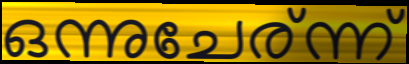
ഒന്നുചേര്ന്ന്